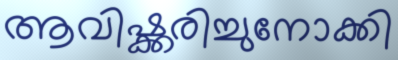
ആവിഷ്ക്കരിച്ചുനോക്കി